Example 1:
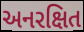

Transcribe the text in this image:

અનરક્ષિત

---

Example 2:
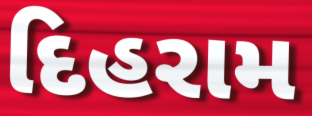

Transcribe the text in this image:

દિહરામ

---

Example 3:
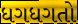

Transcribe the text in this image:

ધગધગતો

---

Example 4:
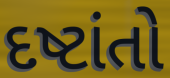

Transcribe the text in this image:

દષ્ટાંતો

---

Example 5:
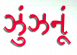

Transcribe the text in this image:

ઝુંઝનૂં